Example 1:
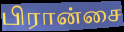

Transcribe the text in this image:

பிரான்சை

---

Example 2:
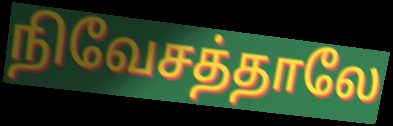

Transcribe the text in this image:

நிவேசத்தாலே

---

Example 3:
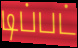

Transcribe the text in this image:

டிப்பட்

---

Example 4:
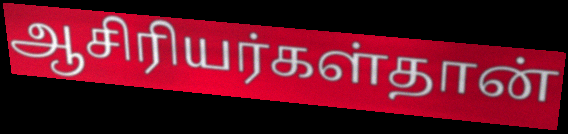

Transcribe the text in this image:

ஆசிரியர்கள்தான்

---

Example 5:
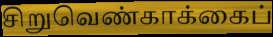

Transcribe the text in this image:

சிறுவெண்காக்கைப்